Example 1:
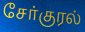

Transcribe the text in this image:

சேர்குரல்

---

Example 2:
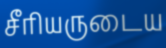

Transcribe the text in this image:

சீரியருடைய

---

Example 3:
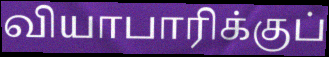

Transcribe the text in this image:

வியாபாரிக்குப்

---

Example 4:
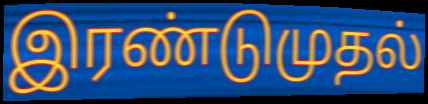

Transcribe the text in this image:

இரண்டுமுதல்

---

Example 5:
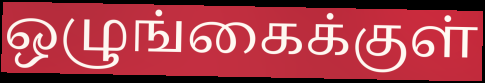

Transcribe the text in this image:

ஒழுங்கைக்குள்